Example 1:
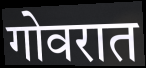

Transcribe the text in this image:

गोवरात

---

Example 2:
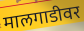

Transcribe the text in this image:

मालगाडीवर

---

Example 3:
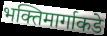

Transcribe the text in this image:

भक्तिमार्गाकडे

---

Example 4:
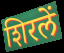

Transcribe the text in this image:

शिरलें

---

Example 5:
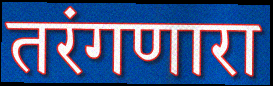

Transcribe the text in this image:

तरंगणारा